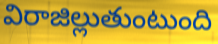
విరాజిల్లుతుంటుంది